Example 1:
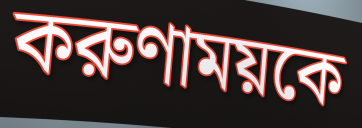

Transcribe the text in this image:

করুণাময়কে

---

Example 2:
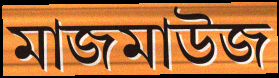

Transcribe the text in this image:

মাজমাউজ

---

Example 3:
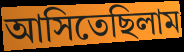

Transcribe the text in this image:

আসিতেছিলাম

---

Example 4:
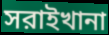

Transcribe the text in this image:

সরাইখানা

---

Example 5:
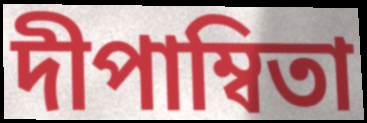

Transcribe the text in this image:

দীপাম্বিতা